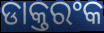
ଡାକ୍ତରଂକ